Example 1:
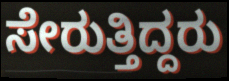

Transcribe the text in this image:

ಸೇರುತ್ತಿದ್ದರು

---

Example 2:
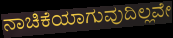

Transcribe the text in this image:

ನಾಚಿಕೆಯಾಗುವುದಿಲ್ಲವೇ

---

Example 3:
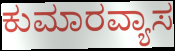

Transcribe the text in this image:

ಕುಮಾರವ್ಯಾಸ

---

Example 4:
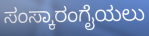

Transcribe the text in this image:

ಸಂಸ್ಕಾರಂಗೈಯಲು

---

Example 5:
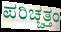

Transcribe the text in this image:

ಪರಿಚ್ಚತ್ತಂ